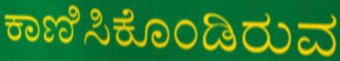
ಕಾಣಿಸಿಕೊಂಡಿರುವ